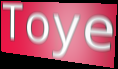
Toye